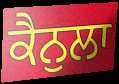
ਕੈਨੁਲਾ